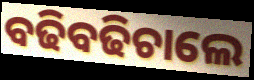
ବଢିବଢିଚାଲେ